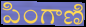
పింగాణి